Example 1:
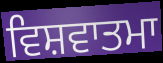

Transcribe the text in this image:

ਵਿਸ਼ਵਾਤਮਾ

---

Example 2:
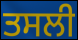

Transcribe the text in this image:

ਤਸਲੀ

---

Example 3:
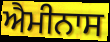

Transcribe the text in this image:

ਐਮੀਨਾਸ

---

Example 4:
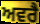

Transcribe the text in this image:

ਅਵਰੈ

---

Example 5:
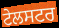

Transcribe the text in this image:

ਟੇਲਸਟਰ